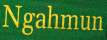
Ngahmun